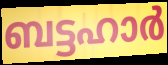
ബട്ടഹാർ